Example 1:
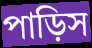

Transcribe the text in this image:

পাড়িস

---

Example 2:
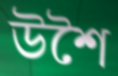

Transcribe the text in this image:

উশৈ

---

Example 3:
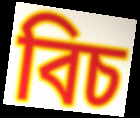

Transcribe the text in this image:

বিচ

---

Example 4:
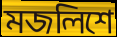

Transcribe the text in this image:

মজলিশে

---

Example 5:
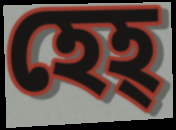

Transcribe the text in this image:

হেহ্